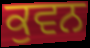
ਕੁਵਨ